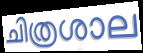
ചിത്രശാല